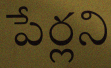
పేర్లని